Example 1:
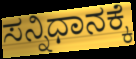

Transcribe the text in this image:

ಸನ್ನಿಧಾನಕ್ಕೆ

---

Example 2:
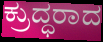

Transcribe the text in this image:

ಕ್ರುದ್ಧರಾದ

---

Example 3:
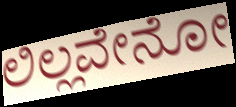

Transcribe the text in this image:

ಲಿಲ್ಲವೇನೋ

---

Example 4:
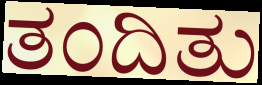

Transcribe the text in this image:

ತಂದಿತು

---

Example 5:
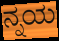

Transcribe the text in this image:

ನ್ನಯ